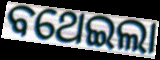
ବଥେଇଲା